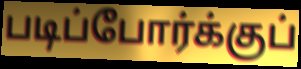
படிப்போர்க்குப்